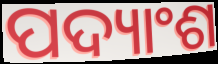
ପଦ୍ୟାଂଶ